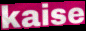
kaise